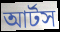
আর্টস